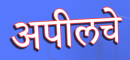
अपीलचे